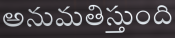
అనుమతిస్తుంది